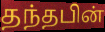
தந்தபின்